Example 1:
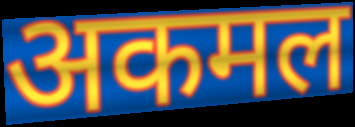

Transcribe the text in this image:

अकमल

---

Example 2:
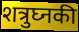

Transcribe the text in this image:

शत्रुघ्नकी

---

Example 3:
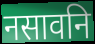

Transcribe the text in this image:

नसावनि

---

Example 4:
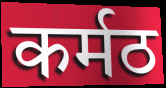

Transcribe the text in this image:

कर्मठ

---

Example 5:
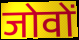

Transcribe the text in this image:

जोवों